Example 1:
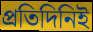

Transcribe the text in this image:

প্রতিদিনিই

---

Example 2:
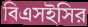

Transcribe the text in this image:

বিএসইসির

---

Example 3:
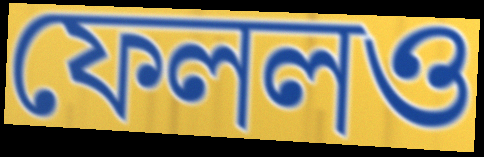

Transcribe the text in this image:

ফেললও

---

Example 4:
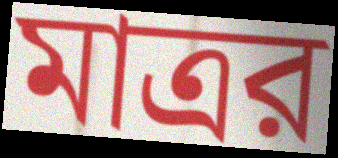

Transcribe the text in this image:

মাত্রর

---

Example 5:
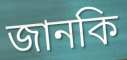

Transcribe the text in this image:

জানকি